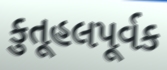
કુતૂહલપૂર્વક